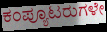
ಕಂಪ್ಯೂಟರುಗಳೇ